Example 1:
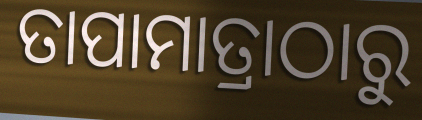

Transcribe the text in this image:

ତାପାମାତ୍ରାଠାରୁ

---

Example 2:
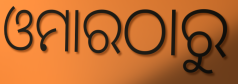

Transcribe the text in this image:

ଓମାରଠାରୁ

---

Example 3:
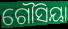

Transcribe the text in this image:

ଗୌସିୟା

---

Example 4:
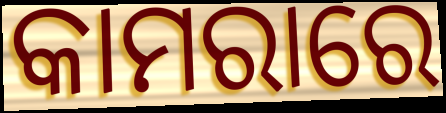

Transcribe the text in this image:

କାମରାରେ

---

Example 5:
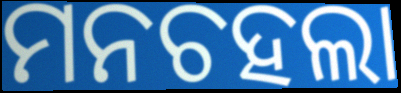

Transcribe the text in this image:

ମନଚହଲା